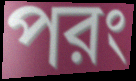
পরং